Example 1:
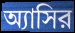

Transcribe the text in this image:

অ্যাসির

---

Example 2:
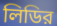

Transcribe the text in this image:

লিডির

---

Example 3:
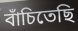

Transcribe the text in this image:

বাঁচিতেছি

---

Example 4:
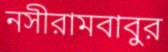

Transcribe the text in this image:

নসীরামবাবুর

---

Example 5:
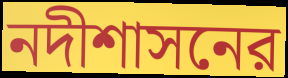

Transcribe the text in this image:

নদীশাসনের